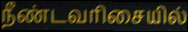
நீண்டவரிசையில்